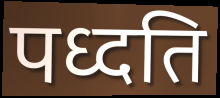
पध्दति